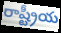
రాష్ట్రీయ